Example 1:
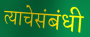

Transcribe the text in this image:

त्याचेसंबंधी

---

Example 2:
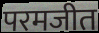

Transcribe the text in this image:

परमजीत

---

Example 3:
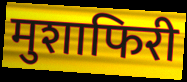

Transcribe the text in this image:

मुशाफिरी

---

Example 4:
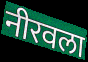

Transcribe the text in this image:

नीरवला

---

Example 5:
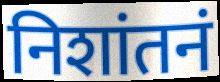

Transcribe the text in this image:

निशांतनं